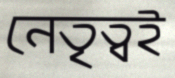
নেতৃত্বই